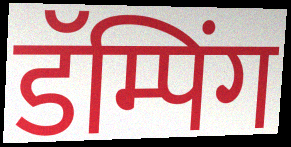
डॅम्पिंग